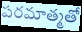
పరమాత్మతో